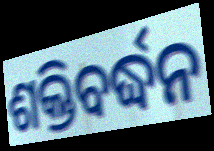
ଶକ୍ତିବର୍ଦ୍ଧନ